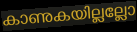
കാണുകയില്ലല്ലോ